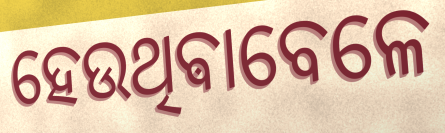
ହେଉଥିଵାବେଳେ